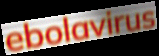
ebolavirus